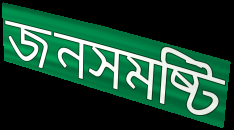
জনসমষ্টি